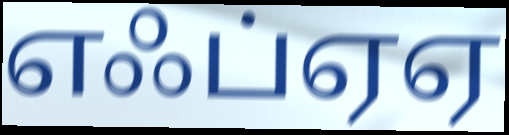
எஃப்ஏஏ